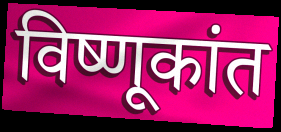
विष्णूकांत